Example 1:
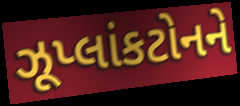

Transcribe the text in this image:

ઝૂપ્લાંકટોનને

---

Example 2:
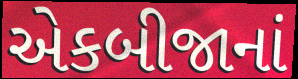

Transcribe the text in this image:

એકબીજાનાં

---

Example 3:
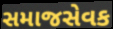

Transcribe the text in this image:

સમાજસેવક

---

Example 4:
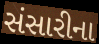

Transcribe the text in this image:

સંસારીના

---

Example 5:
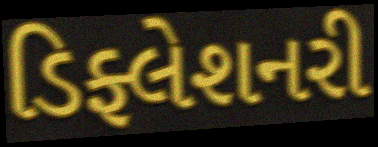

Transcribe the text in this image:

ડિફ્લેશનરી